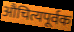
औचित्यपूर्वक